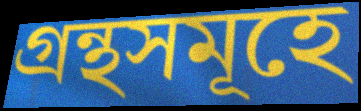
গ্ৰন্থসমূহে